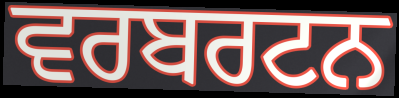
ਵਰਬਰਟਨ